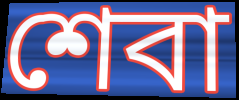
শেবা